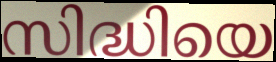
സിദ്ധിയെ